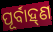
ପୂର୍ବାହ୍‌ଣ